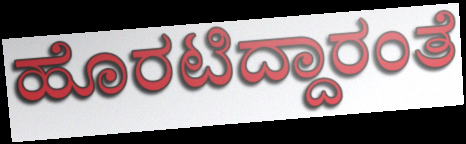
ಹೊರಟಿದ್ದಾರಂತೆ